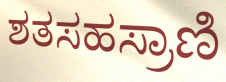
ಶತಸಹಸ್ರಾಣಿ